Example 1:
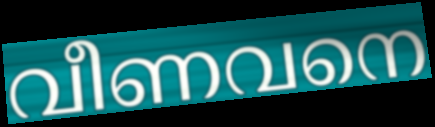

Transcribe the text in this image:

വീണവനെ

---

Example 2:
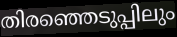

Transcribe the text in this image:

തിരഞ്ഞെടുപ്പിലും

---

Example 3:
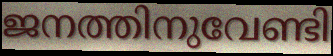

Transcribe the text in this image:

ജനത്തിനുവേണ്ടി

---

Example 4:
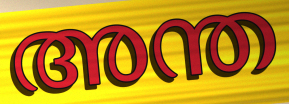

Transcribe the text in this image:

അന്ത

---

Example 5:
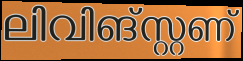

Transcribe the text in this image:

ലിവിങ്സ്റ്റണ്